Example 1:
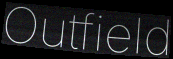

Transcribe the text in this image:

Outfield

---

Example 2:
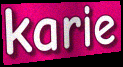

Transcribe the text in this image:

karie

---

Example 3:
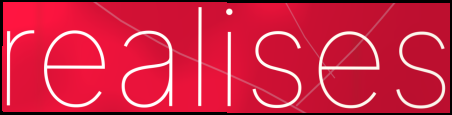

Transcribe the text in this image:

realises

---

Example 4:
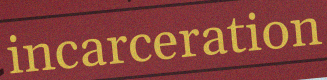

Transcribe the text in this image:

incarceration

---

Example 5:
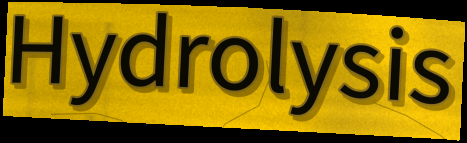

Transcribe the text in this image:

Hydrolysis